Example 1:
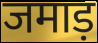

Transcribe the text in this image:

जमाड़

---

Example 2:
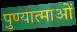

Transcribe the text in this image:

पुण्यात्माओं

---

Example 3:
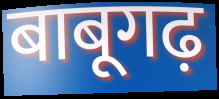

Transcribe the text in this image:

बाबूगढ़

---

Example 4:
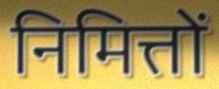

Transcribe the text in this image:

निमित्तों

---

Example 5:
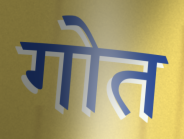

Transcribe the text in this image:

गोत